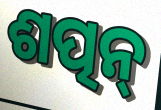
ଶତ୍ପନ୍